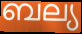
ബല്യ